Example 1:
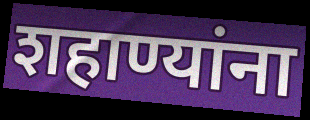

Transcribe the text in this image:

शहाण्यांना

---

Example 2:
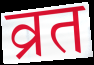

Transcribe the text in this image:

व्रत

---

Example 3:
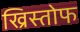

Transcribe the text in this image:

ख्रिस्तोफ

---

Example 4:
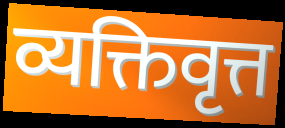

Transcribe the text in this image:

व्यक्तिवृत्त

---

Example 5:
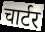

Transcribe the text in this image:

चार्टर